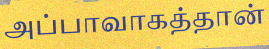
அப்பாவாகத்தான்